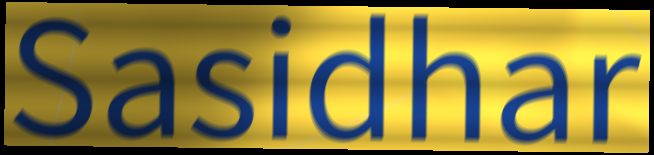
Sasidhar